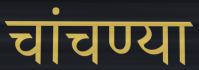
चांचण्या